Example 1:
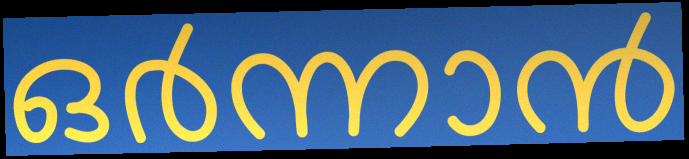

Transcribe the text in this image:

ഒർന്നാൻ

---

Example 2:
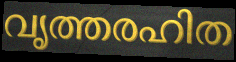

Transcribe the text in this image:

വൃത്തരഹിത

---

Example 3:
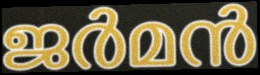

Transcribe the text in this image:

ജർമൻ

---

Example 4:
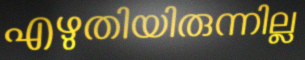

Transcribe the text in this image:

എഴുതിയിരുന്നില്ല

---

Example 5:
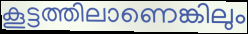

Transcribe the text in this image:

കൂട്ടത്തിലാണെങ്കിലും